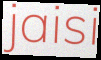
jaisi